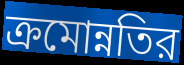
ক্রমোন্নতির